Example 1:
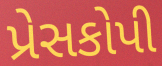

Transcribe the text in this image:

પ્રેસકોપી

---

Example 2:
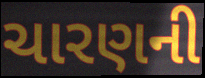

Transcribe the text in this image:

ચારણની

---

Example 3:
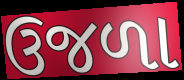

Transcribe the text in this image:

ઉજળા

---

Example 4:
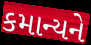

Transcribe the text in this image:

કમાન્યને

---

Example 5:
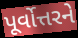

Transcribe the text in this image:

પૂર્વોત્તરને